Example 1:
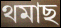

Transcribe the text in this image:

থমাছ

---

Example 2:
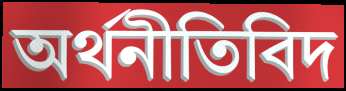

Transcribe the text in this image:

অৰ্থনীতিবিদ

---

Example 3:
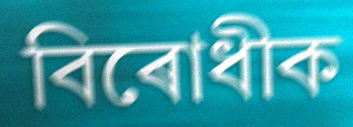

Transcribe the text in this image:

বিৰোধীক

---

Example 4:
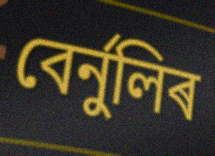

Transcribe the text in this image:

বেৰ্নুলিৰ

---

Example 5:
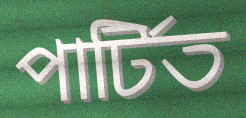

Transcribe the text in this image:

পাৰ্টিত